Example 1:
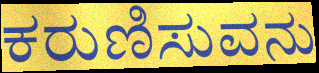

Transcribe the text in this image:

ಕರುಣಿಸುವನು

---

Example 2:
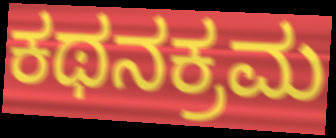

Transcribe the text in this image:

ಕಥನಕ್ರಮ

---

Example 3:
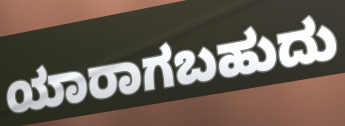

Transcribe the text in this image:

ಯಾರಾಗಬಹುದು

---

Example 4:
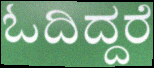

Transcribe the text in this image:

ಓದಿದ್ದರೆ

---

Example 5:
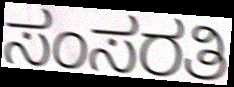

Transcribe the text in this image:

ಸಂಸರತಿ